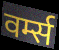
वर्म्स